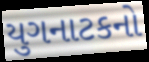
યુગનાટકનો